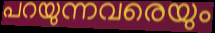
പറയുന്നവരെയും